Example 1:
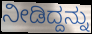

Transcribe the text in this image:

ನೀಡಿದ್ದನ್ನು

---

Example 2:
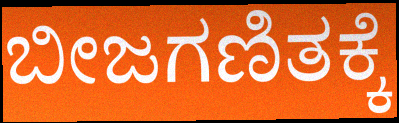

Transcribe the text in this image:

ಬೀಜಗಣಿತಕ್ಕೆ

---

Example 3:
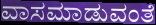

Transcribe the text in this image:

ವಾಸಮಾಡುವಂತೆ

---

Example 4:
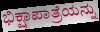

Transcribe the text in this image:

ಭಿಕ್ಷಾಪಾತ್ರೆಯನ್ನು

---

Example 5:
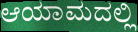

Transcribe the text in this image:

ಆಯಾಮದಲ್ಲಿ